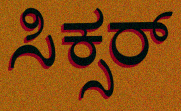
ಸಿಕ್ಸರ್